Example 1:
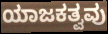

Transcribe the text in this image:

ಯಾಜಕತ್ವವು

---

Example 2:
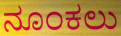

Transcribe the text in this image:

ನೂಂಕಲು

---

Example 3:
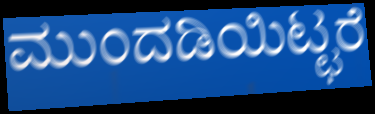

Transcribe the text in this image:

ಮುಂದಡಿಯಿಟ್ಟರೆ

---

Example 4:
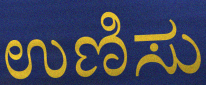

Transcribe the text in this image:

ಉಣಿಸು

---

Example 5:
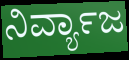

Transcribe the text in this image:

ನಿರ್ವ್ಯಾಜ